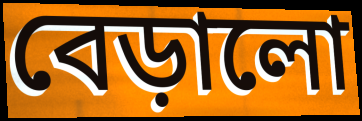
বেড়ালো